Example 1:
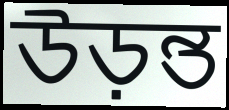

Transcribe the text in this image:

উড়ন্ত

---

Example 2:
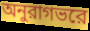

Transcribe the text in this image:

অনুরাগভরে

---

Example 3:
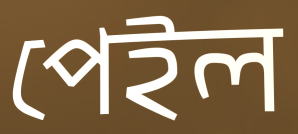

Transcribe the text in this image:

পেইল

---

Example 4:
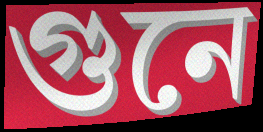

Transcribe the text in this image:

গুনে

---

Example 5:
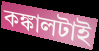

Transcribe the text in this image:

কঙ্কালটাই